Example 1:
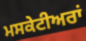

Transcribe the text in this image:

ਮਸਕੇਟੀਅਰਾਂ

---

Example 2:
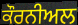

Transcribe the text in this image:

ਕੌਰਨੀਅਲ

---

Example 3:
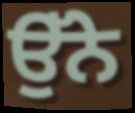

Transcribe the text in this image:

ਉੱਨੇ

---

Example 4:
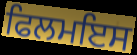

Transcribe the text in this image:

ਫਿਲਮਇਸ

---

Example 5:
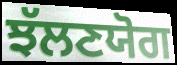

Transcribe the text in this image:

ਝੱਲਣਯੋਗ